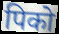
पिको